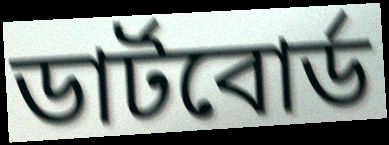
ডার্টবোর্ড